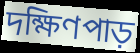
দক্ষিণপাড়